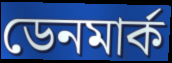
ডেনমার্ক